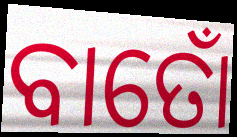
ବାତୋଁ